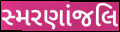
સ્મરણાંજલિ